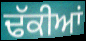
ਢੱਕੀਆਂ